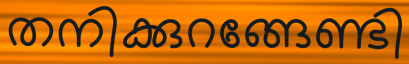
തനിക്കുറങ്ങേണ്ടി